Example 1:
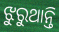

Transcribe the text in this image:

ଝୁରୁଥାନ୍ତି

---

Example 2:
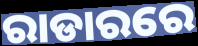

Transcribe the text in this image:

ରାଡାରରେ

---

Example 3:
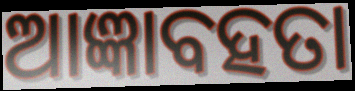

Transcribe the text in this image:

ଆଜ୍ଞାବହତା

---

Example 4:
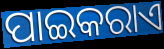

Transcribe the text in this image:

ପାଇକରାଏ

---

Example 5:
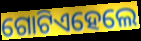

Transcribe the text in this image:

ଗୋଟିଏହେଲେ